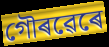
গৌৰৱেৰে